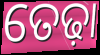
ତେଢ଼ା